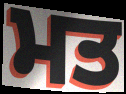
ਮਤ